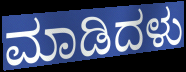
ಮಾಡಿದಳು